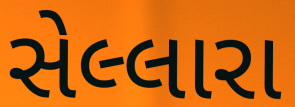
સેલ્લારા